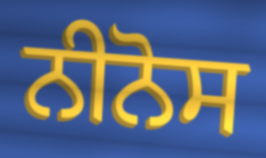
ਨੀਨੋਸ